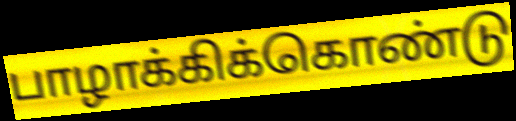
பாழாக்கிக்கொண்டு